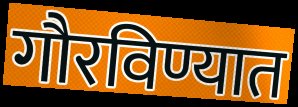
गौरविण्यात